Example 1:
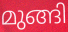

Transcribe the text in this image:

മുങ്ങി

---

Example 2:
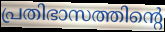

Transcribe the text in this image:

പ്രതിഭാസത്തിന്റെ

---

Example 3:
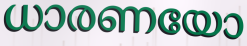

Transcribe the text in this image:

ധാരണയോ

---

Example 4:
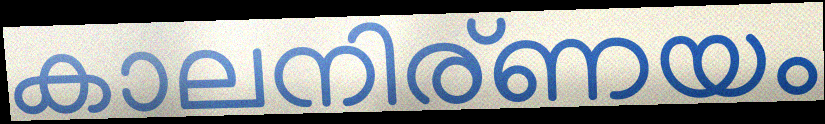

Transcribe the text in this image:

കാലനിര്ണയം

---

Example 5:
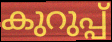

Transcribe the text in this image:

കുറുപ്പ്